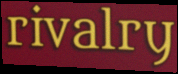
rivalry